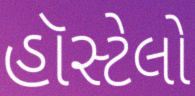
હૉસ્ટેલો